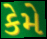
કેમે